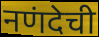
नणंदेची